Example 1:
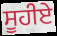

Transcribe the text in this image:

ਸੂਹੀਏ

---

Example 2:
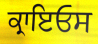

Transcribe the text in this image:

ਕ੍ਰਾਇਓਸ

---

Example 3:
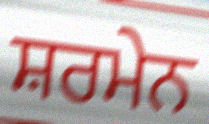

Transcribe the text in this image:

ਸ਼ਰਮੇਨ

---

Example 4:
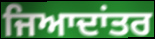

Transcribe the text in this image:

ਜਿਆਦਾਂਤਰ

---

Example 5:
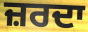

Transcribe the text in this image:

ਜ਼ਰਦਾ